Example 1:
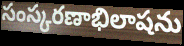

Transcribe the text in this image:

సంస్కరణాభిలాషను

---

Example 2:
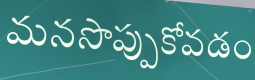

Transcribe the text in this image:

మనసొప్పుకోవడం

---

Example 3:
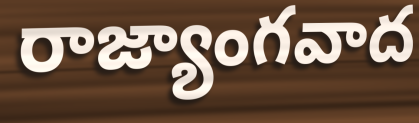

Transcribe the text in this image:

రాజ్యాంగవాద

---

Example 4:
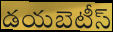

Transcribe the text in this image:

డయబెటీస్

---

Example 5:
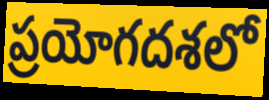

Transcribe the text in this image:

ప్రయోగదశలో